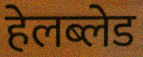
हेलब्लेड